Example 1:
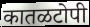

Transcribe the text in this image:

कातळटोपी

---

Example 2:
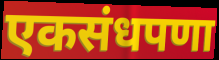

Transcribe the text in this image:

एकसंधपणा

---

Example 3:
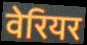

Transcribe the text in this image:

वेरियर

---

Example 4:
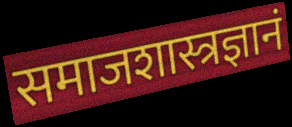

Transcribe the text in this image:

समाजशास्त्रज्ञानं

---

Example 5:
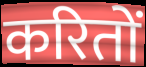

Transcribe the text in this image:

करितों